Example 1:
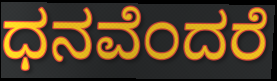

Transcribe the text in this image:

ಧನವೆಂದರೆ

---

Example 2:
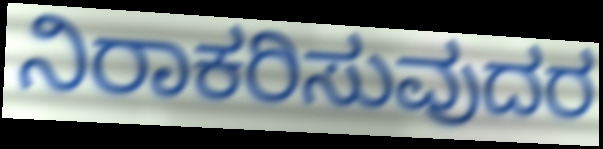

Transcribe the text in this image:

ನಿರಾಕರಿಸುವುದರ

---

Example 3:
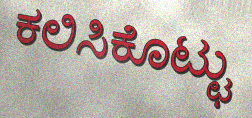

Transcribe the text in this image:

ಕಲಿಸಿಕೊಟ್ಟು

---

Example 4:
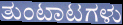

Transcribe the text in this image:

ತುಂಟಾಟಗಳು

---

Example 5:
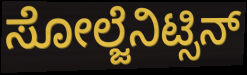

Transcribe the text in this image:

ಸೋಲ್ಜೆನಿಟ್ಸಿನ್